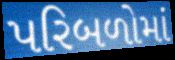
પરિબળોમાં